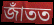
জাঁতত